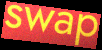
swap